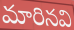
మారినవి